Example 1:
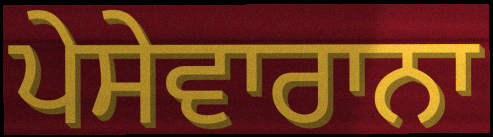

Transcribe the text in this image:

ਪੇਸੇਵਾਰਾਨਾ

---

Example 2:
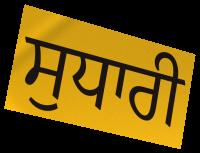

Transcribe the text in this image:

ਸੁਧਾਰੀ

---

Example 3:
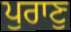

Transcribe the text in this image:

ਪੁਰਾਣੁ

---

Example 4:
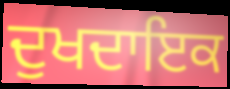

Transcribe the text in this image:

ਦੁਖਦਾਇਕ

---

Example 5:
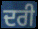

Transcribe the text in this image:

ਦਰੀ